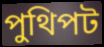
পুথিপট